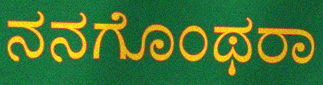
ನನಗೊಂಥರಾ